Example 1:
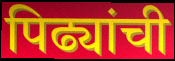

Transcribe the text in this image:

पिढ्यांची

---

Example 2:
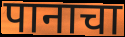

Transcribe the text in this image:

पानाचा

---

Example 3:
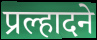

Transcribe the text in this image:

प्रल्हादने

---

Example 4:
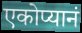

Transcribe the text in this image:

एकोप्यानं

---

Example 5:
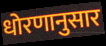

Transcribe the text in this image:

धोरणानुसार